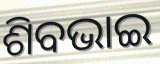
ଶିବଭାଇ